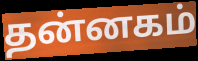
தன்னகம்